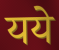
यये